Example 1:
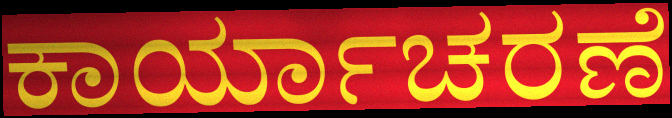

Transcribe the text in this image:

ಕಾರ್ಯಾಚರಣೆ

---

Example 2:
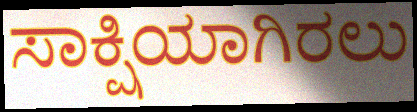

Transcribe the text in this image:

ಸಾಕ್ಷಿಯಾಗಿರಲು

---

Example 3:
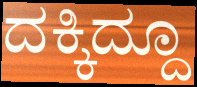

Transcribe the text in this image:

ದಕ್ಕಿದ್ದೂ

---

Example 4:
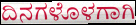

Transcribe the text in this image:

ದಿನಗಳೊಳಗಾಗಿ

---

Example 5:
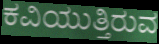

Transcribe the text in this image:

ಕವಿಯುತ್ತಿರುವ